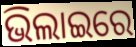
ଭିଲାଇରେ